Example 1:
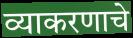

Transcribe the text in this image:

व्याकरणाचे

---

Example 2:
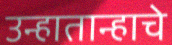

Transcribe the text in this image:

उन्हातान्हाचे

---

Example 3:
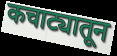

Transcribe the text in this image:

कचाट्यातून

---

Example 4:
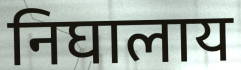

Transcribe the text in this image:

निघालाय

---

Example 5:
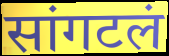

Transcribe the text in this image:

सांगटलं